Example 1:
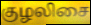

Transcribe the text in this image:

குழலிசை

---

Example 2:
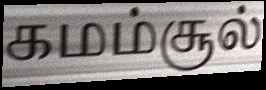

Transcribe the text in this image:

கமம்சூல்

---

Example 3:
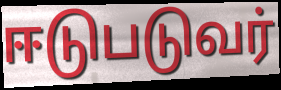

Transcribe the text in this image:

ஈடுபடுவர்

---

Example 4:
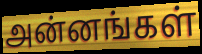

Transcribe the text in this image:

அன்னங்கள்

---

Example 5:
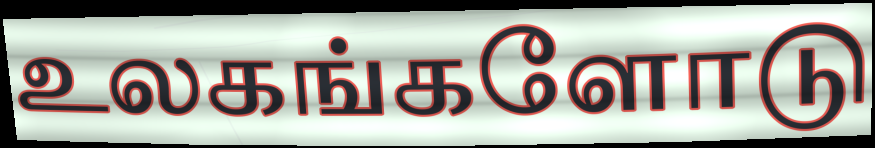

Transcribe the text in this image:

உலகங்களோடு